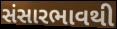
સંસારભાવથી